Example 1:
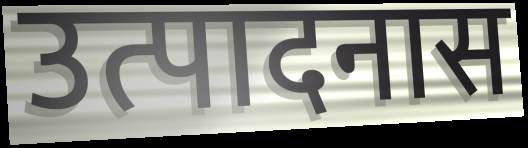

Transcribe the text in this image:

उत्पादनास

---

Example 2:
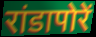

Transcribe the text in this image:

रांडापोरें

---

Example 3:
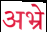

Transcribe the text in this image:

अभ्रे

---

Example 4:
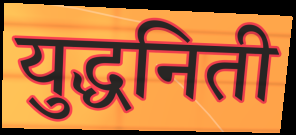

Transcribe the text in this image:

युद्धनिती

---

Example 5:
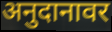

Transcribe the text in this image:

अनुदानावर